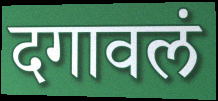
दगावलं